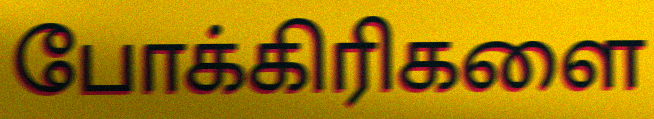
போக்கிரிகளை